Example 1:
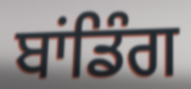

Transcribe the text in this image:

ਬਾਂਡਿੰਗ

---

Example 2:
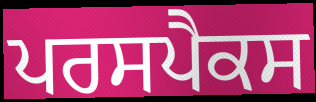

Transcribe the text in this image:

ਪਰਸਪੈਕਸ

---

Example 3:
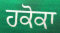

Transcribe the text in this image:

ਹਕੋਕਾ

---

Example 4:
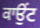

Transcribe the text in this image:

ਕਾਉਂਟ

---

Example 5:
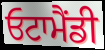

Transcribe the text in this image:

ਓਟਾਮੈਂਡੀ